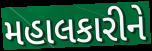
મહાલકારીને